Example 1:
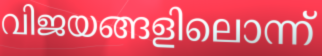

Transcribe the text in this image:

വിജയങ്ങളിലൊന്ന്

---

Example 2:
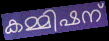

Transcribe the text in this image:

കമ്മിഷന്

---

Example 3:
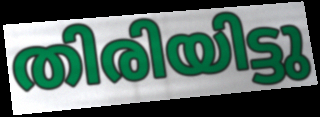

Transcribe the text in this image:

തിരിയിട്ടു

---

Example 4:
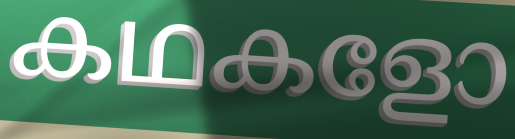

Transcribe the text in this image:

കഥകളോ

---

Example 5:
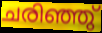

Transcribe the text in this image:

ചരിഞ്ഞു്